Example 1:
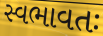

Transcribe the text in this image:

સ્વભાવતઃ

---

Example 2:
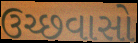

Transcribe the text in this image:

ઉચ્છવાસો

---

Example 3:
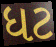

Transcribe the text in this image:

ધટ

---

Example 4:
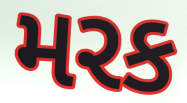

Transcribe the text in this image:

મરક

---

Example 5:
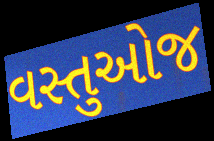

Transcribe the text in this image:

વસ્તુઓજ